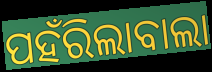
ପହଁରିଲାବାଲା